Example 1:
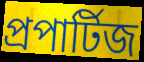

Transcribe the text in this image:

প্রপার্টিজ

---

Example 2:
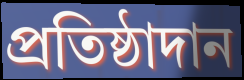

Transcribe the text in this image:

প্রতিষ্ঠাদান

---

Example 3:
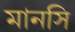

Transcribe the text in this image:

মানসি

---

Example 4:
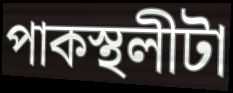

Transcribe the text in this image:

পাকস্থলীটা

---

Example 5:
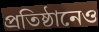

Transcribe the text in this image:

প্রতিষ্ঠানেও